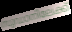
സുഡാനിലേക്ക്